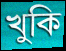
খুকি